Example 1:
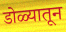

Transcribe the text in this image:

डोळ्यातून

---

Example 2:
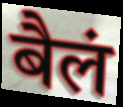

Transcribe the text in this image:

बैलं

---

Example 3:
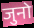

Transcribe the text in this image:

जुनो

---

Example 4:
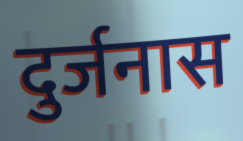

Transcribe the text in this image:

दुर्जनास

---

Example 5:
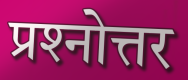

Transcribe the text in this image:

प्रश्‍नोत्तर